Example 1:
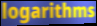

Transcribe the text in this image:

logarithms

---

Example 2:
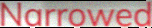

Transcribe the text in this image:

Narrowed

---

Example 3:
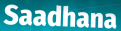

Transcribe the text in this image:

Saadhana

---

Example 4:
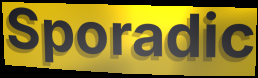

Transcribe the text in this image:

Sporadic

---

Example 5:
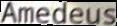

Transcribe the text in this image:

Amedeus